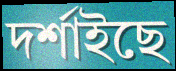
দৰ্শাইছে